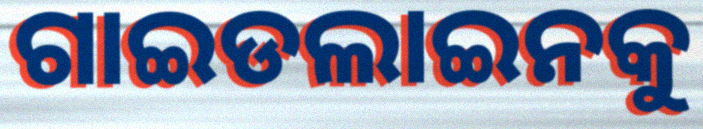
ଗାଇଡଲାଇନକୁ